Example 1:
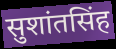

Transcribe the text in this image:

सुशांतसिंह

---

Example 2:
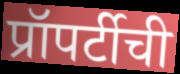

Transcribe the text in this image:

प्रॉपर्टीची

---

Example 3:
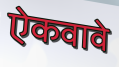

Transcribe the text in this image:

ऐकवावे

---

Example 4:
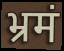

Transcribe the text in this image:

भ्रमं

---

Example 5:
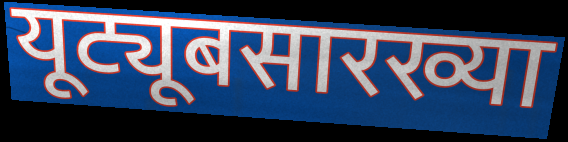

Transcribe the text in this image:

यूट्यूबसारख्या